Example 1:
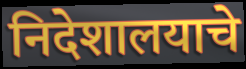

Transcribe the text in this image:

निदेशालयाचे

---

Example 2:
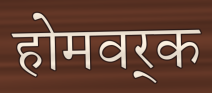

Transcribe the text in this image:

होमवर्क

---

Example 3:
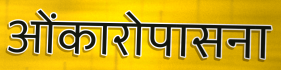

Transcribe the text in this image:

ओंकारोपासना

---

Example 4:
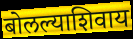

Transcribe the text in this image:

बोलल्याशिवाय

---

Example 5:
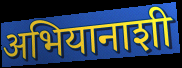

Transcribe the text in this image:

अभियानाशी